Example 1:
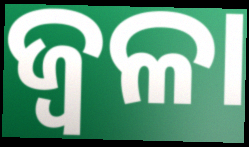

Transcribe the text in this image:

ଜ୍ୱଳା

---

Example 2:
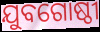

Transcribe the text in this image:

ଯୁବଗୋଷ୍ଠୀ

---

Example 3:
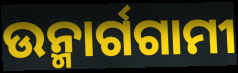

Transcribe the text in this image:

ଉନ୍ମାର୍ଗଗାମୀ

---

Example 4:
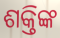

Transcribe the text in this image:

ଶକ୍ତିଙ୍କ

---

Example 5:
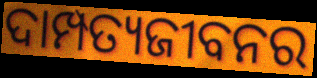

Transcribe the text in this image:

ଦାମ୍ପତ୍ୟଜୀବନର